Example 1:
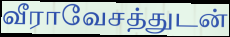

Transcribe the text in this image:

வீராவேசத்துடன்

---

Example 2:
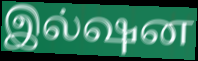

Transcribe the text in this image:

இல்ஷன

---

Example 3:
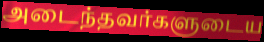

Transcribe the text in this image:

அடைந்தவர்களுடைய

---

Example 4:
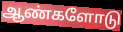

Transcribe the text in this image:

ஆண்களோடு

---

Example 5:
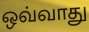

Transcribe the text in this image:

ஒவ்வாது